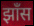
झाँस